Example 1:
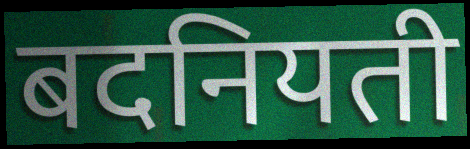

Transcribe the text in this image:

बदनियती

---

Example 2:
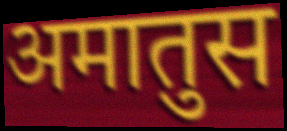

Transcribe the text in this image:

अमातुस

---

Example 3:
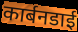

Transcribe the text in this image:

कार्बनडाई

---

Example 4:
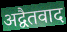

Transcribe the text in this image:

अद्वैतवाद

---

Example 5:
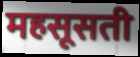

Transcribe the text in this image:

महसूसती